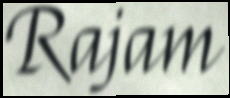
Rajam